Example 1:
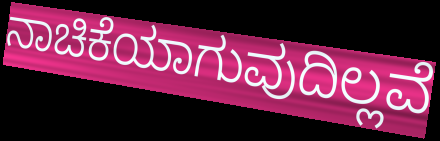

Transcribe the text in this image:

ನಾಚಿಕೆಯಾಗುವುದಿಲ್ಲವೆ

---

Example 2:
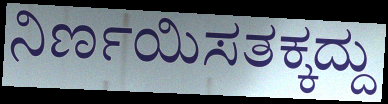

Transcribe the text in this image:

ನಿರ್ಣಯಿಸತಕ್ಕದ್ದು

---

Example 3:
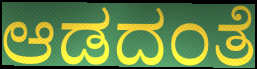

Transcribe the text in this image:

ಆಡದಂತೆ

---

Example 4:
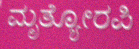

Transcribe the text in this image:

ಮೃತ್ಯೋರಪಿ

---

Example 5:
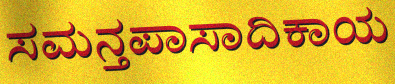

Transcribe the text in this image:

ಸಮನ್ತಪಾಸಾದಿಕಾಯ